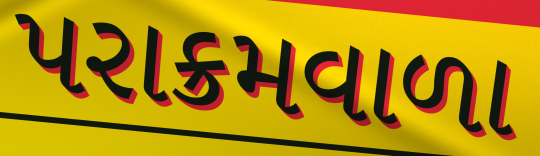
પરાક્રમવાળા